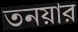
তনয়ার